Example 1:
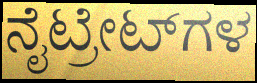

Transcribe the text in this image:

ನೈಟ್ರೇಟ್‌ಗಳ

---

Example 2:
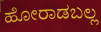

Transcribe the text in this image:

ಹೋರಾಡಬಲ್ಲ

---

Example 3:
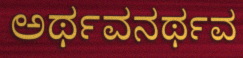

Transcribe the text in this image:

ಅರ್ಥವನರ್ಥವ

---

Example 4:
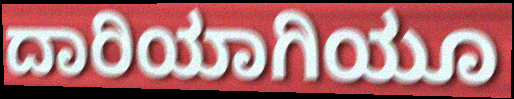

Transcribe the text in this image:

ದಾರಿಯಾಗಿಯೂ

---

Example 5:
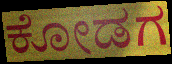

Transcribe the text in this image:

ಕೋಡಗ